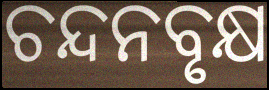
ଚନ୍ଦନବୃକ୍ଷ